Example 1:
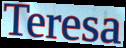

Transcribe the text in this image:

Teresa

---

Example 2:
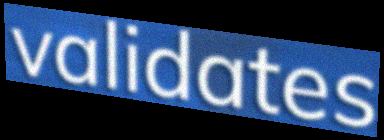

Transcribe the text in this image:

validates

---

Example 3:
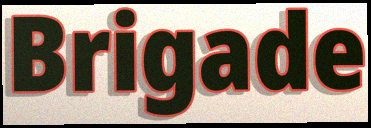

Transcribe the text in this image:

Brigade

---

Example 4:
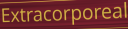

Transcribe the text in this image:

Extracorporeal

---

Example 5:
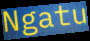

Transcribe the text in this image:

Ngatu